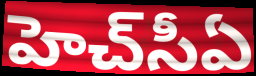
హెచ్‌సీఏ